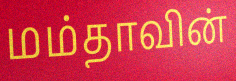
மம்தாவின்